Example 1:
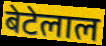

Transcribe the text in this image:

बेटेलाल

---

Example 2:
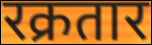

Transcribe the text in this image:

रक्रतार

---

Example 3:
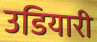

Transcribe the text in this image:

उडियारी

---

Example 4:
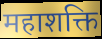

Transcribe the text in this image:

महाशक्ति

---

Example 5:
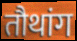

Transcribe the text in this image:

तौथांग